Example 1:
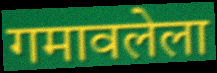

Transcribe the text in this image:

गमावलेला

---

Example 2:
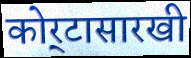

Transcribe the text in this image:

कोर्टासारखी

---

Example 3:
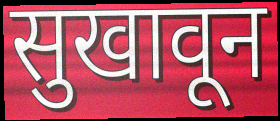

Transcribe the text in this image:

सुखावून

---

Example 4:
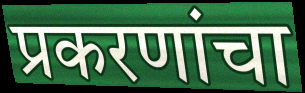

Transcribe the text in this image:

प्रकरणांचा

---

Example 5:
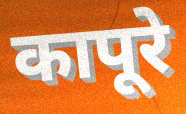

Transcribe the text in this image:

कापूरे